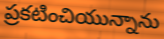
ప్రకటించియున్నాను